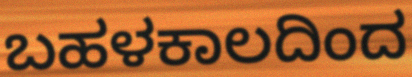
ಬಹಳಕಾಲದಿಂದ